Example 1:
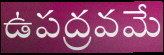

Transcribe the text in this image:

ఉపద్రవమే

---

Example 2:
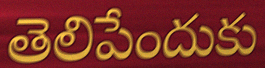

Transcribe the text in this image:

తెలిపేందుకు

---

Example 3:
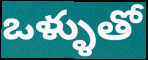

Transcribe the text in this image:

ఒళ్ళుతో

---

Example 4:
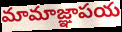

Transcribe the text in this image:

మామాజ్ఞాపయ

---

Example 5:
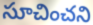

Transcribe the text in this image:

సూచించని